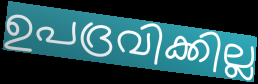
ഉപദ്രവിക്കില്ല